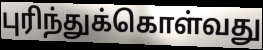
புரிந்துக்கொள்வது